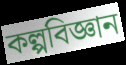
কল্পবিজ্ঞান